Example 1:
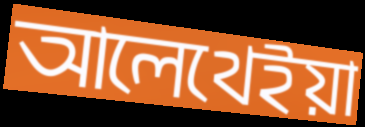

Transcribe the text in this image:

আলেথেইয়া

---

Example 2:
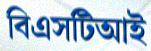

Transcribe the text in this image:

বিএসটিআই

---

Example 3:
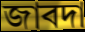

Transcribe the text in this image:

জাবদা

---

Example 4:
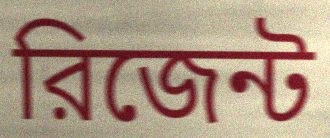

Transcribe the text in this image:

রিজেন্ট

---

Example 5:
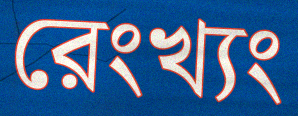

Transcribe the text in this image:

রেংখ্যং